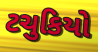
ટચુકિયો